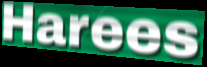
Harees